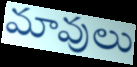
మావులు